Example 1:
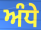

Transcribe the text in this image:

ਅੰਧੇ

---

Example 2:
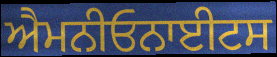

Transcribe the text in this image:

ਐਮਨੀਓਨਾਈਟਸ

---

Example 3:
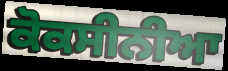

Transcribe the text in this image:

ਕੋਕਸੀਨੀਆ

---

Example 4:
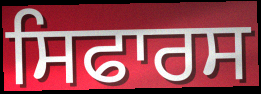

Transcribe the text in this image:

ਸਿਫਾਰਸ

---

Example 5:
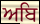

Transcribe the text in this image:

ਅਬਿ